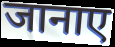
जानाए